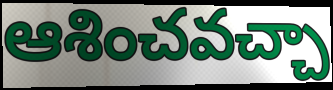
ఆశించవచ్చా